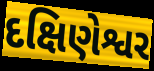
દક્ષિણેશ્વર